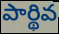
పార్థివ